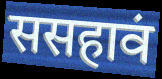
ससहावं